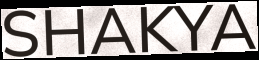
SHAKYA